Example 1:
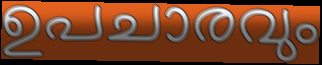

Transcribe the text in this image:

ഉപചാരവും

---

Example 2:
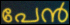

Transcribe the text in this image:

പേൻ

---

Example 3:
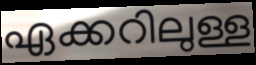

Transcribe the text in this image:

ഏക്കറിലുള്ള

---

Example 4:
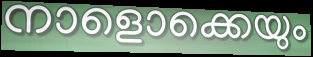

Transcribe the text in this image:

നാളൊക്കെയും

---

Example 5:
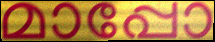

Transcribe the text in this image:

മാപ്പോ